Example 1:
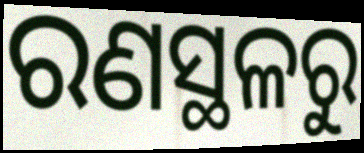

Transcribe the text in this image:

ରଣସ୍ଥଳରୁ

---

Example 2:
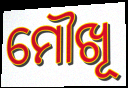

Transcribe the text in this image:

ମୌଖୂ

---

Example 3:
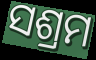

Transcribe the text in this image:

ସଶ୍ରମ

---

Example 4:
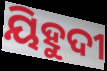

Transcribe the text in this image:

ୟିହୁଦୀ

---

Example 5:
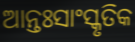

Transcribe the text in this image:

ଆନ୍ତଃସାଂସ୍କୃତିକ